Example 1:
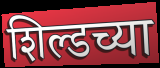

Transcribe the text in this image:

शिल्डच्या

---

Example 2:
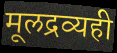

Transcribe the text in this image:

मूलद्रव्यही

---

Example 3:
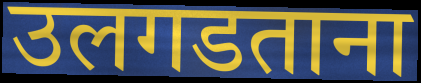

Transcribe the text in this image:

उलगडताना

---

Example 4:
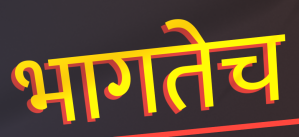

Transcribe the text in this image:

भागतेच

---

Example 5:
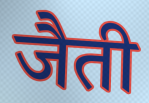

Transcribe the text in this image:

जैती